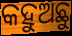
କହୁଅଛୁ